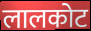
लालकोट